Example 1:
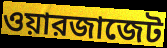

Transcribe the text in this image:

ওয়ারজাজেট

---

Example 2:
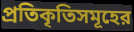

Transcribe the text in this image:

প্রতিকৃতিসমূহের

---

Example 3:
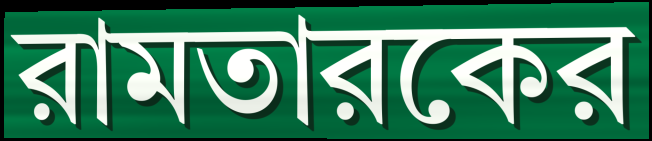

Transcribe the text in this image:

রামতারকের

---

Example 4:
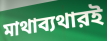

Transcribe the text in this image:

মাথাব্যথারই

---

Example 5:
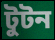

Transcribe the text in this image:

টুটন